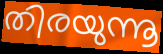
തിരയുന്നൂ